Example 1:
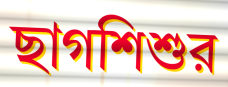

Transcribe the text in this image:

ছাগশিশুর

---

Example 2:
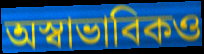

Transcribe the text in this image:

অস্বাভাবিকও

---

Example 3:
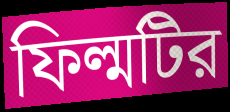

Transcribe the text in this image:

ফিল্মটির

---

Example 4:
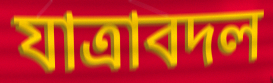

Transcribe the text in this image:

যাত্রাবদল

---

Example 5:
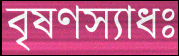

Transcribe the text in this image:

বৃষণস্যাধঃ